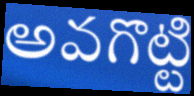
అవగొట్టి